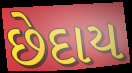
છેદાય